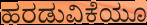
ಹರಡುವಿಕೆಯೂ